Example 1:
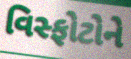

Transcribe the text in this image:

વિસ્ફોટોને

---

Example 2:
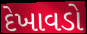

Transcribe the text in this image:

દેખાવડો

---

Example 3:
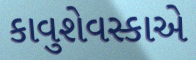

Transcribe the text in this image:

કાવુશેવસ્કાએ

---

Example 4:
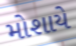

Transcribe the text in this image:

મોશાયે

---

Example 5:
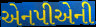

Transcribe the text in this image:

એનપીએની